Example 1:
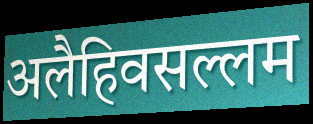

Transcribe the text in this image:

अलैहिवसल्लम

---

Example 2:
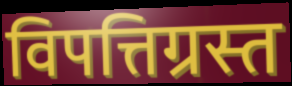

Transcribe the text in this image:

विपत्तिग्रस्त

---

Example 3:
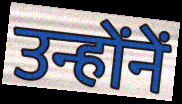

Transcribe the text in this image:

उन्‍होंनें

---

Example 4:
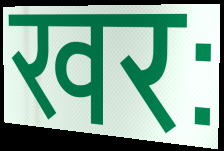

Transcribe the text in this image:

खरः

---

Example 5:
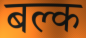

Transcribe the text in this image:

बल्क